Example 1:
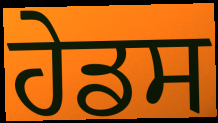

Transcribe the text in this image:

ਹੇਡਸ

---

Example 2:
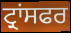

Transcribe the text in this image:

ਟ੍ਰਾਂਸਫਰ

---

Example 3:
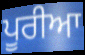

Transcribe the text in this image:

ਪੂਰੀਆ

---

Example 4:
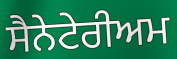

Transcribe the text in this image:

ਸੈਨੇਟੇਰੀਅਮ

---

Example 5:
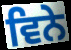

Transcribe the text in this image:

ਵਿਨੇ